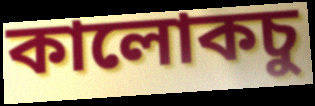
কালোকচু